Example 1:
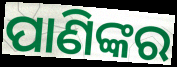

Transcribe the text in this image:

ପାଣିଙ୍କର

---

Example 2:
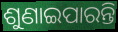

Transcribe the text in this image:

ଶୁଣାଇପାରନ୍ତି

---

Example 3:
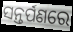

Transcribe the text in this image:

ସନ୍ତର୍ପଣରେ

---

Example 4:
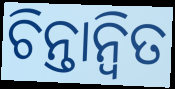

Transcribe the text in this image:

ଚିନ୍ତାନ୍ୱିତ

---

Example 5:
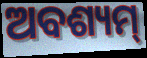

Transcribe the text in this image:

ଅବଶ୍ୟମ୍